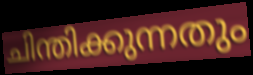
ചിന്തിക്കുന്നതും